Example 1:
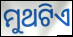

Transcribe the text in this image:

ମୁଥଟିଏ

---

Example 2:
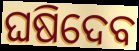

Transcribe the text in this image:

ଘଷିଦେବ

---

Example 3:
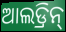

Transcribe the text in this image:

ଆଲଡ୍ରିନ୍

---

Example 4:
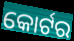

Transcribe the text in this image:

କୋର୍ଟର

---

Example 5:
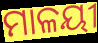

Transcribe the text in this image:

ମାଳୟୀ